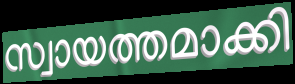
സ്വായത്തമാക്കി